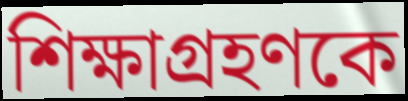
শিক্ষাগ্রহণকে